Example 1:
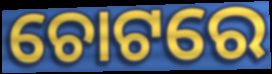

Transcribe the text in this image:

ଚୋଟରେ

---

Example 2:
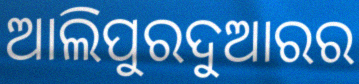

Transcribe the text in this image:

ଆଲିପୁରଦୁଆରର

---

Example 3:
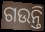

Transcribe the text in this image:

ଗଉନ୍ତି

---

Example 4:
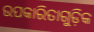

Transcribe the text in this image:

ଉପକାରିତାଗୁଡ଼ିକ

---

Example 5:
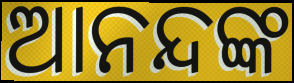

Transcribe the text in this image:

ଆନନ୍ଦଙ୍କ